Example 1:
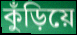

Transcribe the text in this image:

কুঁড়িয়ে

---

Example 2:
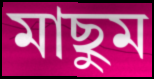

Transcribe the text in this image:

মাছুম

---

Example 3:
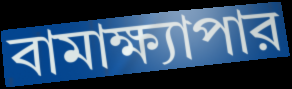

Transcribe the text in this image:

বামাক্ষ্যাপার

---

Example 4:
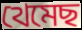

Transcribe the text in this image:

থেমেছ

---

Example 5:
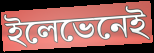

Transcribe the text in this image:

ইলেভেনেই